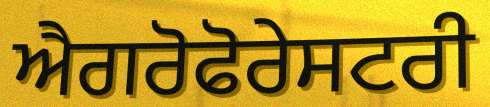
ਐਗਰੋਫੋਰੇਸਟਰੀ